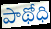
పాథోధి